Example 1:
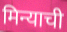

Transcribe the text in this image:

मिन्याची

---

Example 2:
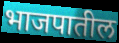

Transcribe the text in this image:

भाजपातील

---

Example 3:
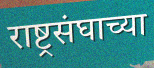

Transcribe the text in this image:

राष्ट्रसंघाच्या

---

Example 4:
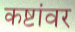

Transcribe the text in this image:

कष्टांवर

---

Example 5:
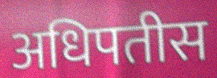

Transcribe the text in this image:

अधिपतीस